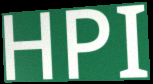
HPI